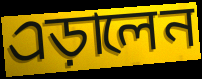
এড়ালেন